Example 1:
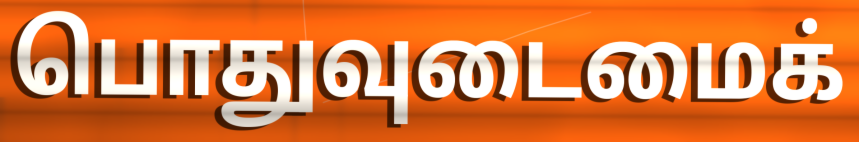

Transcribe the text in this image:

பொதுவுடைமைக்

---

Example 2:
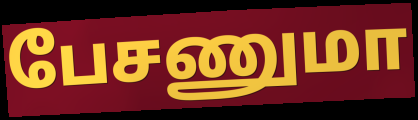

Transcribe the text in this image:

பேசணுமா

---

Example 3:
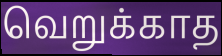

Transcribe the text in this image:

வெறுக்காத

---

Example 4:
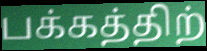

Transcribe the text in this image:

பக்கத்திற்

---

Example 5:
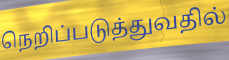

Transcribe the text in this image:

நெறிப்படுத்துவதில்